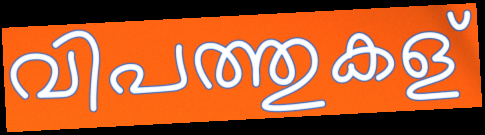
വിപത്തുകള്